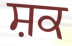
ਸ਼ਕ